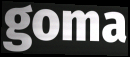
goma